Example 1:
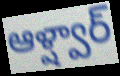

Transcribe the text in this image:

ఆళ్ష్వార్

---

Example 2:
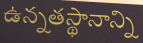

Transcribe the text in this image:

ఉన్నతస్థానాన్ని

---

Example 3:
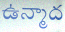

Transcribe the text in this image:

ఉన్మాద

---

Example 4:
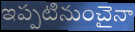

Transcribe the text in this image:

ఇప్పటినుంచైనా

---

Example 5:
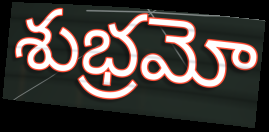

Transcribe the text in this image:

శుభ్రమో